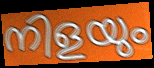
നിളയും